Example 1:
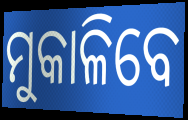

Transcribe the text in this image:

ମୁକାଳିବେ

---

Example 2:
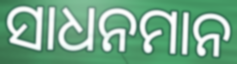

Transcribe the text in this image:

ସାଧନମାନ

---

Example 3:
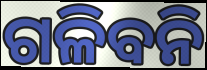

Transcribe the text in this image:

ଗଳିବନି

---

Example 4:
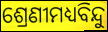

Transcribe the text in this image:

ଶ୍ରେଣୀମଧ୍ୟବିନ୍ଦୁ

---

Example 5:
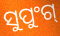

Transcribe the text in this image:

ସୁପୁଂଗ୍